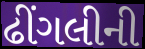
ઢીંગલીની